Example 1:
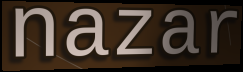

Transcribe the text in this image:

nazar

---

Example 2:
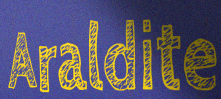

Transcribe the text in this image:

Araldite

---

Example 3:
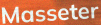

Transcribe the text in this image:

Masseter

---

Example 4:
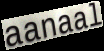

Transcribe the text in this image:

aanaal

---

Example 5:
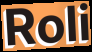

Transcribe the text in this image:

Roli